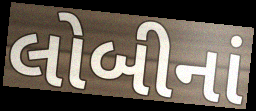
લોબીનાં